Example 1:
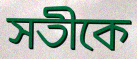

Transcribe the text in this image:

সতীকে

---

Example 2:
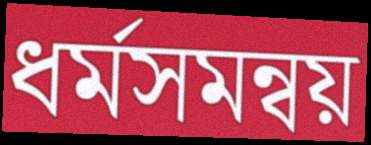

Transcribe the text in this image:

ধর্মসমন্বয়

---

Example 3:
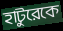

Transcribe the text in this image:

হাটুরেকে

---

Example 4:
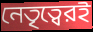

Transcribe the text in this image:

নেতৃত্বেরই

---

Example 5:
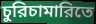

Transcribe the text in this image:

চুরিচামারিতে